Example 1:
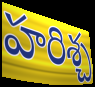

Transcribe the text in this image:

హరిశ్చ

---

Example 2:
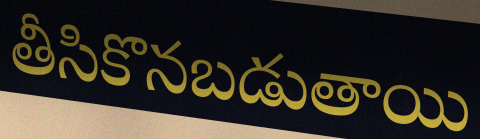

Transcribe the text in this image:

తీసికొనబడుతాయి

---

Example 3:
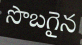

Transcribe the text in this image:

సొబగైన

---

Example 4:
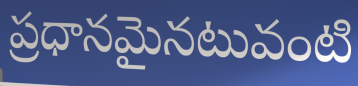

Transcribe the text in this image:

ప్రధానమైనటువంటి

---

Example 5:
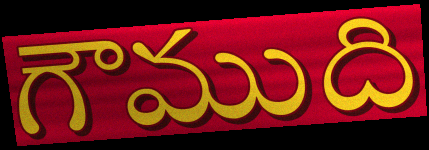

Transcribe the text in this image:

గౌముది